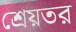
শ্রেয়তর